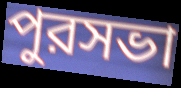
পুরসভা